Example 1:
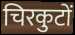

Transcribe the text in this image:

चिरकुटों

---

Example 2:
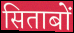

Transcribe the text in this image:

सिताबों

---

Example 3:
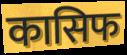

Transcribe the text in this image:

कासिफ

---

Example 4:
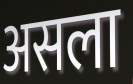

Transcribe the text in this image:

असला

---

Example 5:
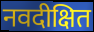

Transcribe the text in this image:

नवदीक्षित